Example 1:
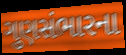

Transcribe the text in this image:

ગુણસંભારના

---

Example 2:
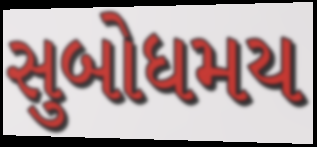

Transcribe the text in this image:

સુબોધમય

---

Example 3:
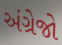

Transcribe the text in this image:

અંગ્રેજો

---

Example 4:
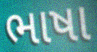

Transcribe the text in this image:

ભાષા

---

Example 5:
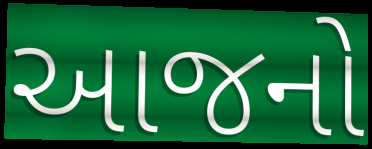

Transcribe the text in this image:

આજનો